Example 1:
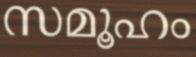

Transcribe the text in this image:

സമൂഹം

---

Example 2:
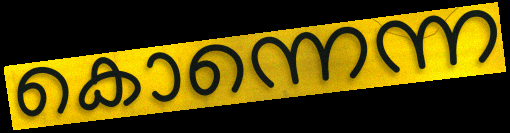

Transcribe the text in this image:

കൊന്നെന്ന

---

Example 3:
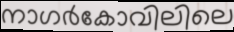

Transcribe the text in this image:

നാഗർകോവിലിലെ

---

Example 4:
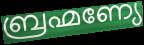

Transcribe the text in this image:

ബ്രഹ്മണ്യേ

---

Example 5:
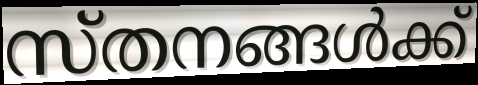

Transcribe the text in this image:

സ്തനങ്ങൾക്ക്